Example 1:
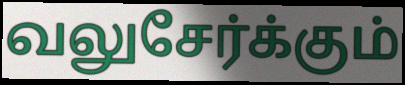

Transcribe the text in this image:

வலுசேர்க்கும்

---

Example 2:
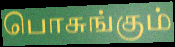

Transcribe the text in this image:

பொசுங்கும்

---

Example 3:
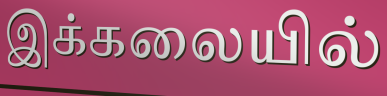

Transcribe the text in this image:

இக்கலையில்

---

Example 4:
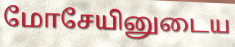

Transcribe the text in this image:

மோசேயினுடைய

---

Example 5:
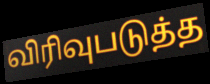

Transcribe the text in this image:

விரிவுபடுத்த